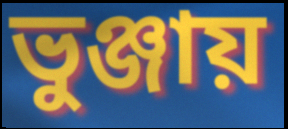
ভুঞ্জায়